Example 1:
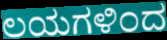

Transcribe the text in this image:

ಲಯಗಳಿಂದ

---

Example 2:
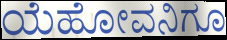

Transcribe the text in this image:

ಯೆಹೋವನಿಗೂ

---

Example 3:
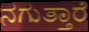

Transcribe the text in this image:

ನಗುತ್ತಾರೆ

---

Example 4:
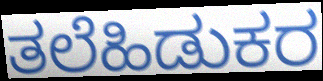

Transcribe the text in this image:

ತಲೆಹಿಡುಕರ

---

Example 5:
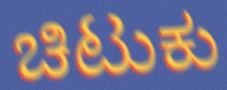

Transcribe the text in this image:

ಚಿಟುಕು